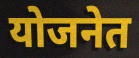
योजनेत